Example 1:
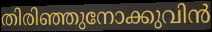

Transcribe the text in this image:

തിരിഞ്ഞുനോക്കുവിൻ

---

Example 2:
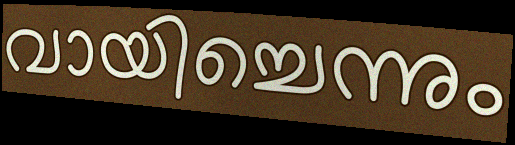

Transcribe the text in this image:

വായിച്ചെന്നും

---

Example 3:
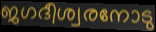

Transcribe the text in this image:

ജഗദീശ്വരനോടു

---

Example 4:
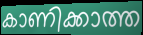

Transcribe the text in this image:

കാണിക്കാത്ത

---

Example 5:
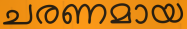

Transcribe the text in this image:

ചരണമായ